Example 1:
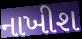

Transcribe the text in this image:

નાખીશ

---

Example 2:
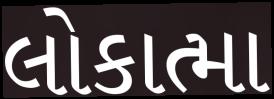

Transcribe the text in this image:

લોકાત્મા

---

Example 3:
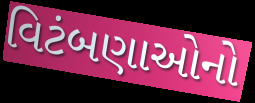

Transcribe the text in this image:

વિટંબણાઓનો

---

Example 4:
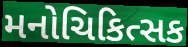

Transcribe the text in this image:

મનોચિકિત્સક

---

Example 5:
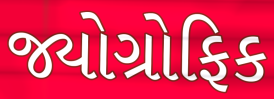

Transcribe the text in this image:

જ્યોગ્રોફિક